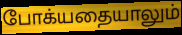
போக்யதையாலும்